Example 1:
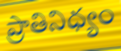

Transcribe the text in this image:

ప్రాతినిధ్యం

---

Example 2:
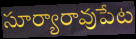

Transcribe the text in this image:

సూర్యారావుపేట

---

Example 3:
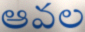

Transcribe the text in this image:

ఆవల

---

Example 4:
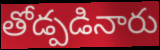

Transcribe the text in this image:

తోడ్పడినారు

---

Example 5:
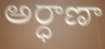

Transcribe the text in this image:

అర్ధాణా